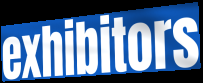
exhibitors